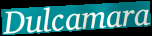
Dulcamara